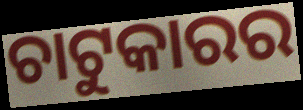
ଚାଟୁକାରର